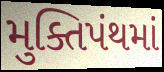
મુક્તિપંથમાં